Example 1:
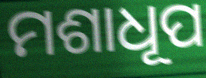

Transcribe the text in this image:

ମଶାଧୂପ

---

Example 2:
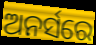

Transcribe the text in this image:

ଅନର୍ସରେ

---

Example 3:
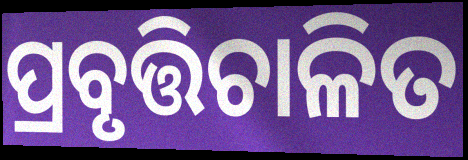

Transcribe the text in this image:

ପ୍ରବୃତ୍ତିଚାଳିତ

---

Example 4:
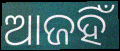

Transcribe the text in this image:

ଆଜହିଁ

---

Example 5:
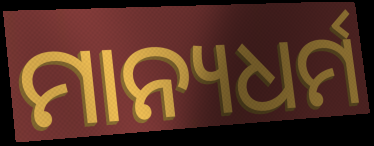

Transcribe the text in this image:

ମାନ୍ୟଧର୍ମ